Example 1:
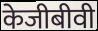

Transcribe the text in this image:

केजीबीवी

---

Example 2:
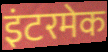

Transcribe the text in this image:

इंटरमेक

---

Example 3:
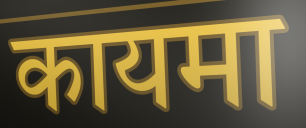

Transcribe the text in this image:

कायमा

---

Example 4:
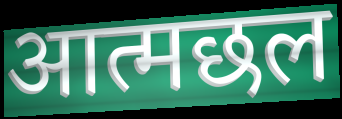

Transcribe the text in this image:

आत्मछल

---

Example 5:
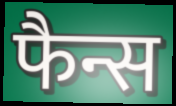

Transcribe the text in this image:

फैन्स